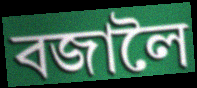
বজালৈ